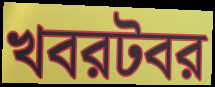
খবরটবর